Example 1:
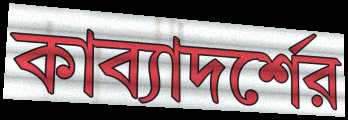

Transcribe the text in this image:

কাব্যাদর্শের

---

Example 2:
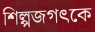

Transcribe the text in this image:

শিল্পজগৎকে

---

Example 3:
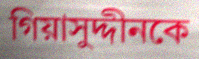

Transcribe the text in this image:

গিয়াসুদ্দীনকে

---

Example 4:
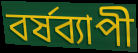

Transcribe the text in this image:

বর্ষব্যাপী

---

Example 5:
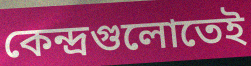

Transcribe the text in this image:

কেন্দ্রগুলোতেই